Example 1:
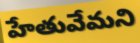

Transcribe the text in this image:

హేతువేమని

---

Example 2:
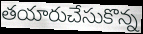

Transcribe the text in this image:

తయారుచేసుకొన్న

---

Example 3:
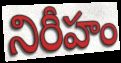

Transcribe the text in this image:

నిరీహం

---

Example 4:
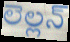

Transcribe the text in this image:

లెల్లన్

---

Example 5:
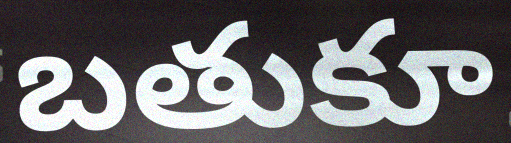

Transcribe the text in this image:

బతుకూ